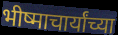
भीष्माचार्यांच्या